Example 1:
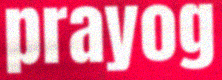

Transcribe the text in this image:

prayog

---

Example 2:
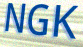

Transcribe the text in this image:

NGK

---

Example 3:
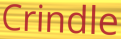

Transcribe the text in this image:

Crindle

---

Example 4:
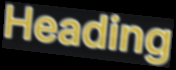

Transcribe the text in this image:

Heading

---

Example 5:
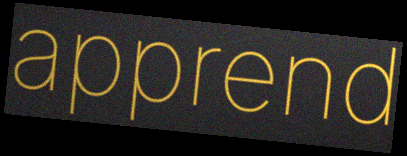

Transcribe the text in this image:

apprend